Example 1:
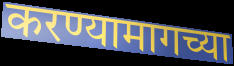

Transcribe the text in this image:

करण्यामागच्या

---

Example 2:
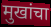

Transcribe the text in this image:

मुखांचा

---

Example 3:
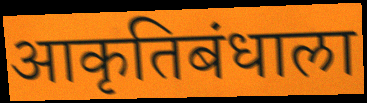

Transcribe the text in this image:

आकृतिबंधाला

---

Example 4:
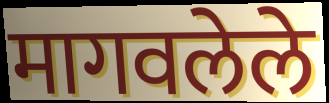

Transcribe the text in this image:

मागवलेले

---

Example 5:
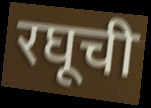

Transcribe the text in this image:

रघूची